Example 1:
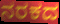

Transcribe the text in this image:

ನರಕದ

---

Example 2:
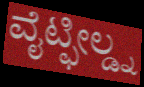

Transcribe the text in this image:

ವೈಟ್ಫೀಲ್ಡ್ನ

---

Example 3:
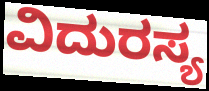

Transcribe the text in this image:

ವಿದುರಸ್ಯ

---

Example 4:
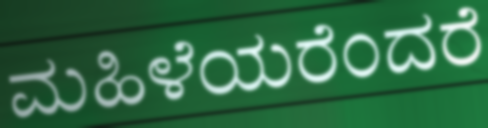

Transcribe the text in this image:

ಮಹಿಳೆಯರೆಂದರೆ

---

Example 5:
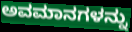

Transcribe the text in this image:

ಅವಮಾನಗಳನ್ನು